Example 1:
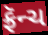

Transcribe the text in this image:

ફ્રૅન્ચ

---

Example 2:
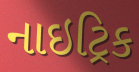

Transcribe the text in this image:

નાઇટ્રિક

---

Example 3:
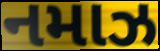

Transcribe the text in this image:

નમાઝ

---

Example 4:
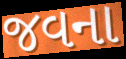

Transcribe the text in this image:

જવના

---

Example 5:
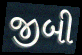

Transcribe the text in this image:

જીબી